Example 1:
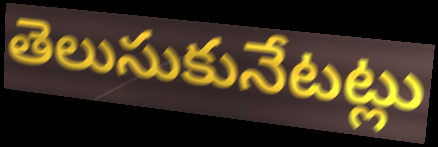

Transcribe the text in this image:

తెలుసుకునేటట్లు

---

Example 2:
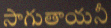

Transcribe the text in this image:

సాగుతాయనీ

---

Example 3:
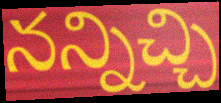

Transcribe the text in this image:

నన్నిచ్చి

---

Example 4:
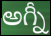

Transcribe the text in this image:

అగ్నీ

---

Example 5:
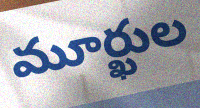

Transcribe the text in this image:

మూర్ఖుల